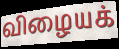
விழையக்